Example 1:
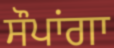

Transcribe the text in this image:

ਸੌਪਾਂਗਾ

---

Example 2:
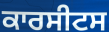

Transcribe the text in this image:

ਕਾਰਸੀਟਸ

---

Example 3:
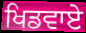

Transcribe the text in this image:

ਖਿਡਵਾਏ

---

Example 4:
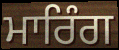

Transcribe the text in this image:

ਮਾਰਿੰਗ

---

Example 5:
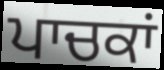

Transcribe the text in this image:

ਪਾਚਕਾਂ